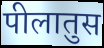
पीलातुस